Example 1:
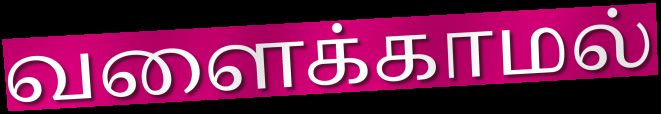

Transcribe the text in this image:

வளைக்காமல்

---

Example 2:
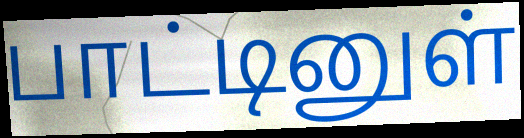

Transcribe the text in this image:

பாட்டினுள்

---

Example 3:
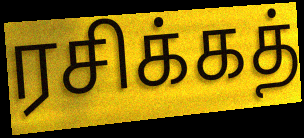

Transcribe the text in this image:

ரசிக்கத்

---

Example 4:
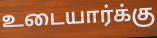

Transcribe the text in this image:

உடையார்க்கு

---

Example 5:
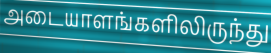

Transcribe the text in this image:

அடையாளங்களிலிருந்து